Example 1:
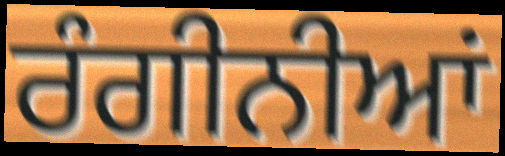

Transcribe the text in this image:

ਰੰਗੀਨੀਆਂ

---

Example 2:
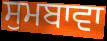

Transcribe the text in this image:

ਸੁਮਬਾਵਾ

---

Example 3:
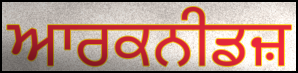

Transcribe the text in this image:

ਆਰਕਨੀਡਜ਼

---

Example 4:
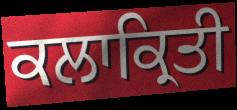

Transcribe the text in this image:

ਕਲਾਕ੍ਰਿਤੀ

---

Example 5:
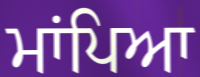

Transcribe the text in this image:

ਮਾਂਪਿਆ